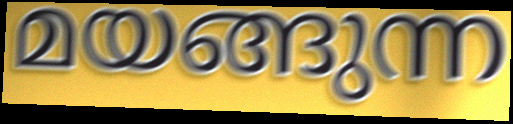
മയങ്ങുന്ന